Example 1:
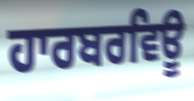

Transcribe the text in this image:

ਹਾਰਬਰਵਿਊ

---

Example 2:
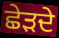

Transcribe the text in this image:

ਛੇੜਦੇ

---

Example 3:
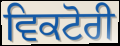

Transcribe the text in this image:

ਵਿਕਟੋਰੀ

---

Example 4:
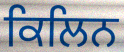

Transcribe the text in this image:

ਕਿਲਿਨ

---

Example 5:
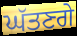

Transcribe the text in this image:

ਘੱਤਣਗੇ